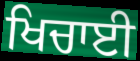
ਖਿਚਾਈ